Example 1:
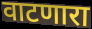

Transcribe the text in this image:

वाटणारा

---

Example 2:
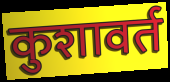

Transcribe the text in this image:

कुशावर्त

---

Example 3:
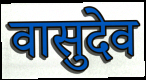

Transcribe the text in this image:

वासुदेव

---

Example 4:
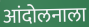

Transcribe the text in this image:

आंदोलनाला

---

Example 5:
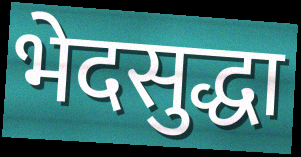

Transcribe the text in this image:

भेदसुद्धा